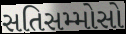
સતિસમ્મોસો